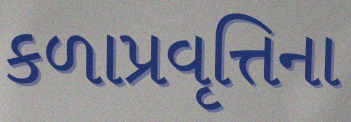
કળાપ્રવૃત્તિના